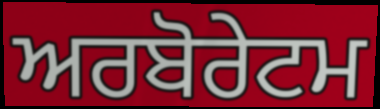
ਅਰਬੋਰੇਟਮ